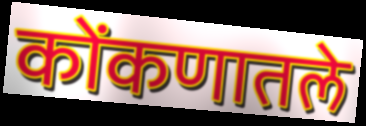
कोंकणातले